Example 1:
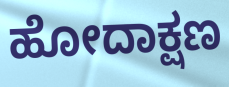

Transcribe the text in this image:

ಹೋದಾಕ್ಷಣ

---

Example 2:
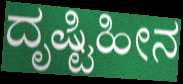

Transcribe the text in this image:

ದೃಷ್ಟಿಹೀನ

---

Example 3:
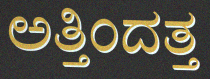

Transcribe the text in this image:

ಅತ್ತಿಂದತ್ತ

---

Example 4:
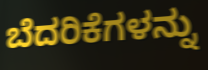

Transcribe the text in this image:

ಬೆದರಿಕೆಗಳನ್ನು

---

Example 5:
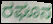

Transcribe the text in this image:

ರಘೂನ